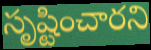
సృష్టించారని